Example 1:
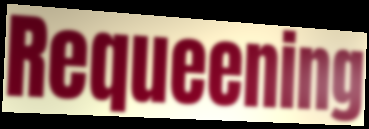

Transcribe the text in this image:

Requeening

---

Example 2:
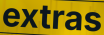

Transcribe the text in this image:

extras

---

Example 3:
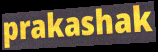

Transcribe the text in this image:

prakashak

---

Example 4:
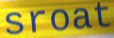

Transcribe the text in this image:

sroat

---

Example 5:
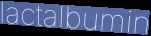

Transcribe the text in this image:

lactalbumin